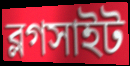
ব্লগসাইট